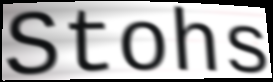
Stohs